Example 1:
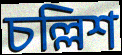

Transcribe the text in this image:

চল্লিশ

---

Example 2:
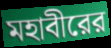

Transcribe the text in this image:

মহাবীরের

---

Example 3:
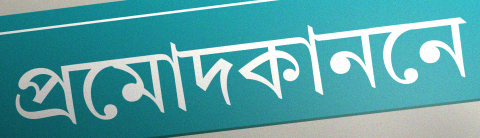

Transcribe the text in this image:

প্রমোদকাননে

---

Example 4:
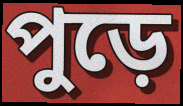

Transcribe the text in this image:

পুড়ে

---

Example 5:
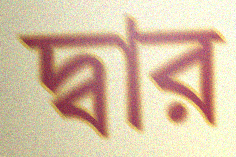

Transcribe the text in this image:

দ্বার